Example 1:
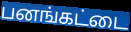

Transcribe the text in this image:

பனங்கட்டை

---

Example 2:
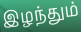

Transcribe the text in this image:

இழந்தும்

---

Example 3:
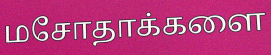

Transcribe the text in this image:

மசோதாக்களை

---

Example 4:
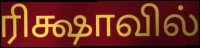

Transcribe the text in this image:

ரிக்ஷாவில்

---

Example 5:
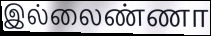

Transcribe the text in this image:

இல்லைண்ணா